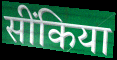
सींकिया